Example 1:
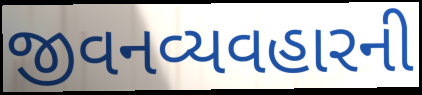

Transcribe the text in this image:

જીવનવ્યવહારની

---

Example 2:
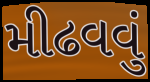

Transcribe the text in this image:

મીઢવવું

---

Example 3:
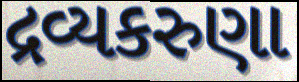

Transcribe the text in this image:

દ્રવ્યકરુણા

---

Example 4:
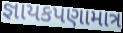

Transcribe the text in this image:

જ્ઞાયકપણામાત્ર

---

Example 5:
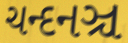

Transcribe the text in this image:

ચન્દનઞ્ચ